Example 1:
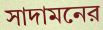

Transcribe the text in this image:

সাদামনের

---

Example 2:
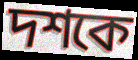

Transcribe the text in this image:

দশকে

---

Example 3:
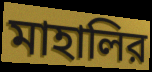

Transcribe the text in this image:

মাহালির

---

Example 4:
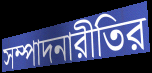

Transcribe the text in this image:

সম্পাদনারীতির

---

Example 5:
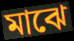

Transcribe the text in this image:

মাঝে